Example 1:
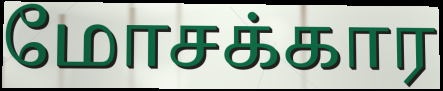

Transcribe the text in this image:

மோசக்கார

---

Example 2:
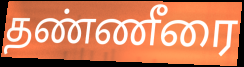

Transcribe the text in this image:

தண்ணீரை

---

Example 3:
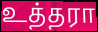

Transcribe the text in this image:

உத்தரா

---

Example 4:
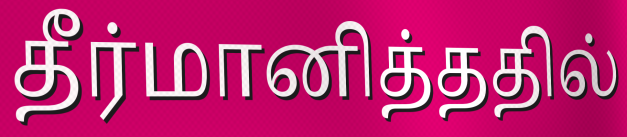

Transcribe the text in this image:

தீர்மானித்ததில்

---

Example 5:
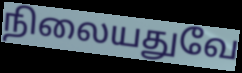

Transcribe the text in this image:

நிலையதுவே